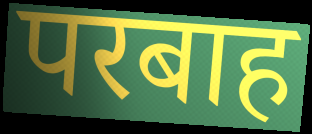
परबाह